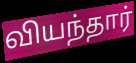
வியந்தார்